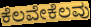
ಕೆಲವೇಕೆಲವು